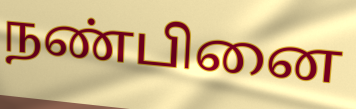
நண்பினை